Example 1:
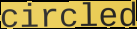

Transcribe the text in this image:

circled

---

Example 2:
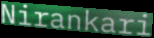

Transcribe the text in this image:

Nirankari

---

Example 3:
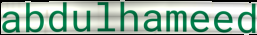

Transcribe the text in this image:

abdulhameed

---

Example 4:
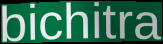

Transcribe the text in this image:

bichitra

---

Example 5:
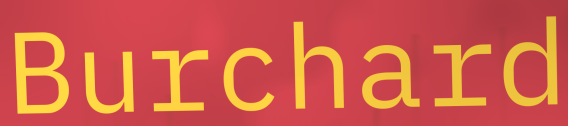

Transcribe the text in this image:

Burchard